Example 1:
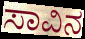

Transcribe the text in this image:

ಸಾವಿನ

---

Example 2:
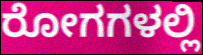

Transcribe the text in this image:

ರೋಗಗಳಲ್ಲಿ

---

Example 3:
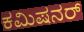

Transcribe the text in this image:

ಕಮಿಷನರ್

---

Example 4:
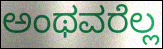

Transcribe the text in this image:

ಅಂಥವರೆಲ್ಲ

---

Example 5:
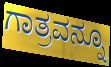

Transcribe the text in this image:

ಗಾತ್ರವನ್ನೂ